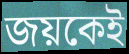
জয়কেই